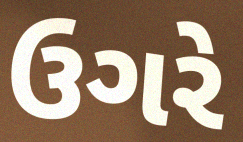
ઉગરે